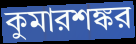
কুমারশঙ্কর